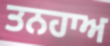
ਤਨਹਾਅ